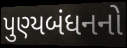
પુણ્યબંધનનો